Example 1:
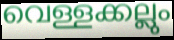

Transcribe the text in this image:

വെള്ളക്കല്ലും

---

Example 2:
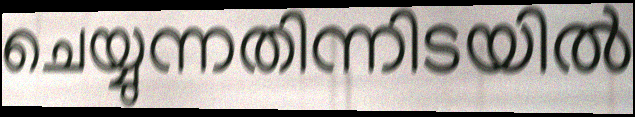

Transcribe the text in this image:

ചെയ്യുന്നതിന്നിടയിൽ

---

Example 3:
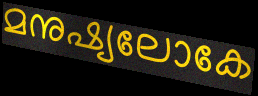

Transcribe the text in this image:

മനുഷ്യലോകേ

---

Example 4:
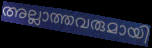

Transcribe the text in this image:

അല്ലാത്തവരുമായി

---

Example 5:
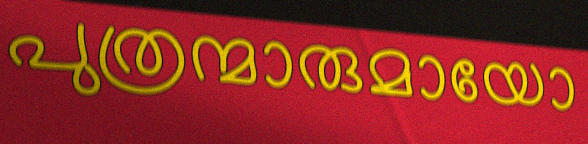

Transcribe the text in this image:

പുത്രന്മാരുമായോ